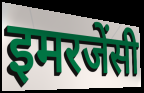
इमरजेंसी